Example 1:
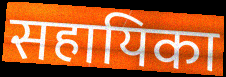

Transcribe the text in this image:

सहायिका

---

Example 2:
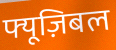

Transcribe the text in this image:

फ्यूज़िबल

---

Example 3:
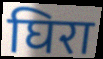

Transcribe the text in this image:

घिरा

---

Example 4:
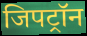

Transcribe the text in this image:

जिपट्रॉन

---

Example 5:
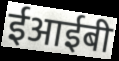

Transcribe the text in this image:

ईआईबी